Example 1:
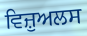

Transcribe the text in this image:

ਵਿਜ਼ੁਅਲਸ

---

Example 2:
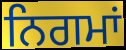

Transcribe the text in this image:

ਨਿਗਮਾਂ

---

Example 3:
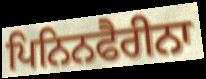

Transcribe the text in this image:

ਪਿਨਿਨਫੈਰੀਨਾ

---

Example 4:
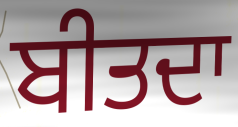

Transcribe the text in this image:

ਬੀਤਦਾ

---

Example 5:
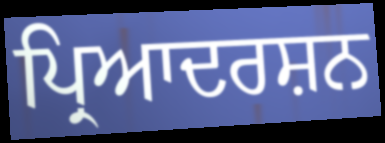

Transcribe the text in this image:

ਪ੍ਰਿਆਦਰਸ਼ਨ